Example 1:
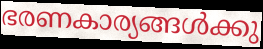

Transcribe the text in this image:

ഭരണകാര്യങ്ങൾക്കു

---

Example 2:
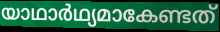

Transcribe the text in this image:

യാഥാർഥ്യമാകേണ്ടത്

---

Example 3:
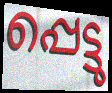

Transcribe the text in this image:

പ്പെട്ടു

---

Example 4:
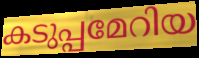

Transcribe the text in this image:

കടുപ്പമേറിയ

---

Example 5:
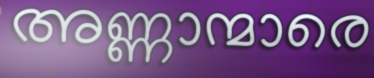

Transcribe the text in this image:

അണ്ണാന്മാരെ